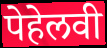
पेहेलवी